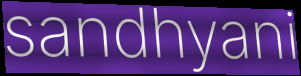
sandhyani